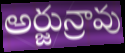
అర్జున్రావు